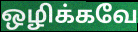
ஒழிக்கவே